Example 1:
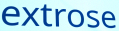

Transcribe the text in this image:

extrose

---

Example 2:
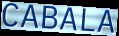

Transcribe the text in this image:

CABALA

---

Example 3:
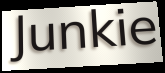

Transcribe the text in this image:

Junkie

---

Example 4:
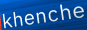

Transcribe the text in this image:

khenche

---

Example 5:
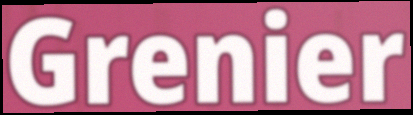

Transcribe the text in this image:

Grenier